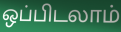
ஒப்பிடலாம்